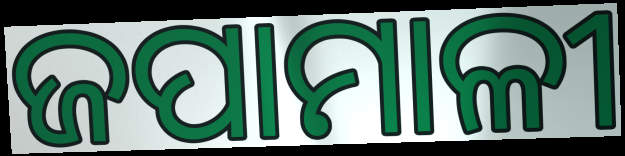
ଜପାମାଳୀ